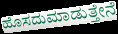
ಹೊಸದುಮಾಡುತ್ತೇನೆ